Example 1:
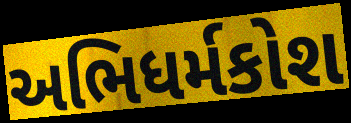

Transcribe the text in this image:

અભિધર્મકોશ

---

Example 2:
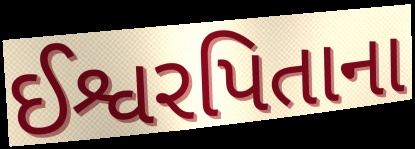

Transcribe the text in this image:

ઈશ્વરપિતાના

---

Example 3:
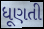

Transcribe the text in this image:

ધૂણતી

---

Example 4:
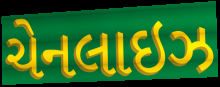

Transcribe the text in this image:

ચેનલાઇઝ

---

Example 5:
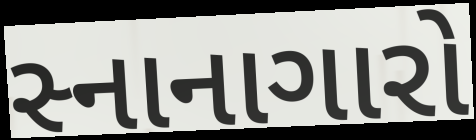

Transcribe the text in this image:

સ્નાનાગારો